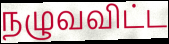
நழுவவிட்ட